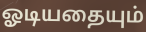
ஓடியதையும்